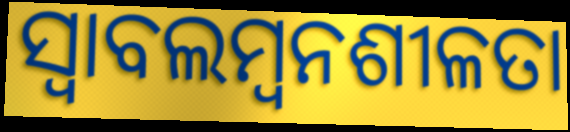
ସ୍ୱାବଲମ୍ୱନଶୀଳତା